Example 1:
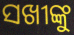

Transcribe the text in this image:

ସଖୀଙ୍କୁ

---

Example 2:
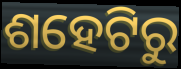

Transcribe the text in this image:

ଶହେଟିରୁ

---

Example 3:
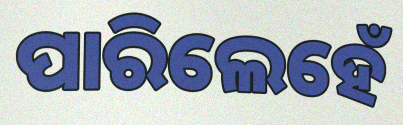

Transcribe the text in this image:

ପାରିଲେହେଁ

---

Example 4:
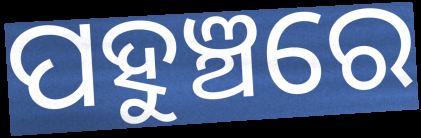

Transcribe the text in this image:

ପହୁଞ୍ଚରେ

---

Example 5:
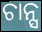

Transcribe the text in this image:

ଚାନ୍ସ